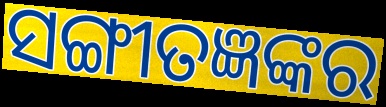
ସଙ୍ଗୀତଜ୍ଞଙ୍କର